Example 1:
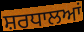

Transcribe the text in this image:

ਸ਼ਰਧਾਲਆਂ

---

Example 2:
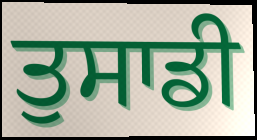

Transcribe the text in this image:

ਤੁਸਾਡੀ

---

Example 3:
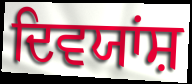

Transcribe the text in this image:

ਦਿਵਯਾਂਸ਼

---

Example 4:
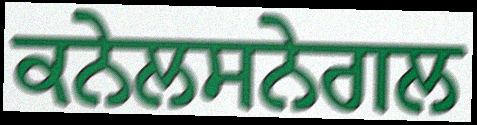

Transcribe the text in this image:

ਕਨੇਲਸਨੇਗਲ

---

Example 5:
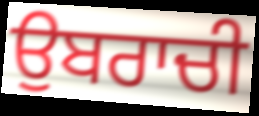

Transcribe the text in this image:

ਉਬਰਾਚੀ